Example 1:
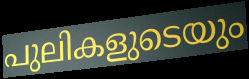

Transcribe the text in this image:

പുലികളുടെയും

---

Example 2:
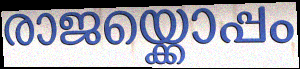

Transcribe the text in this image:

രാജയ്ക്കൊപ്പം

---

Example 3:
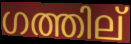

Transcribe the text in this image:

ഗത്തില്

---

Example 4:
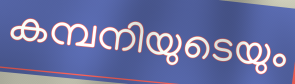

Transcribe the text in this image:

കമ്പനിയുടെയും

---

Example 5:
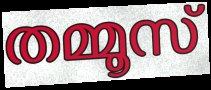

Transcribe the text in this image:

തമ്മൂസ്